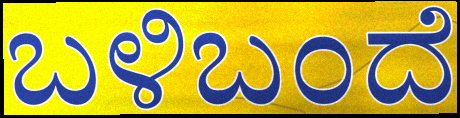
ಬಳಿಬಂದೆ